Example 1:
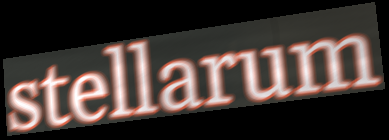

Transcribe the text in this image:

stellarum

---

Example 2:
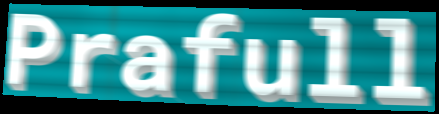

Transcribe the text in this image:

Prafull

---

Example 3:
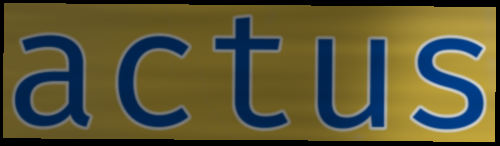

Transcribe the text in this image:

actus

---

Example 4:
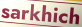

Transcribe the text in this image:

sarkhich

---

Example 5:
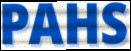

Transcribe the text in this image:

PAHS